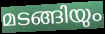
മടങ്ങിയും